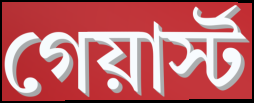
গেয়ার্স্ট